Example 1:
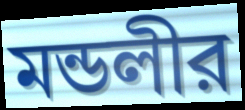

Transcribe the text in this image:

মন্ডলীর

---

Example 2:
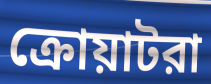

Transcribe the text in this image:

ক্রোয়াটরা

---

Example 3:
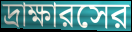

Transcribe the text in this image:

দ্রাক্ষারসের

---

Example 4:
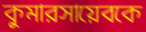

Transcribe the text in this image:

কুমারসায়েবকে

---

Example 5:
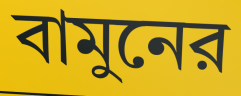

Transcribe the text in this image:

বামুনের